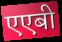
एएबी